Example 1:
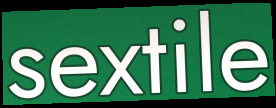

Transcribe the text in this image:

sextile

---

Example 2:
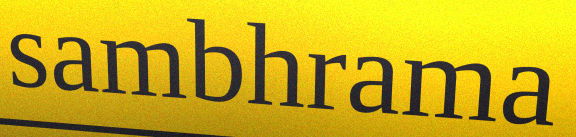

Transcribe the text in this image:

sambhrama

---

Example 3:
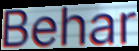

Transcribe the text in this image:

Behar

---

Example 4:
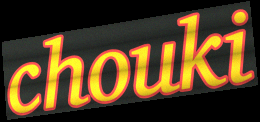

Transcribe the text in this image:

chouki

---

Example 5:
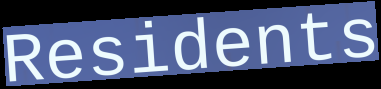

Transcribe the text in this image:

Residents